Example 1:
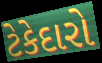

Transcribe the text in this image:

ટેકેદારો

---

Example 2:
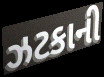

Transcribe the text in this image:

ઝટકાની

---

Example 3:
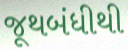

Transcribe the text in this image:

જૂથબંધીથી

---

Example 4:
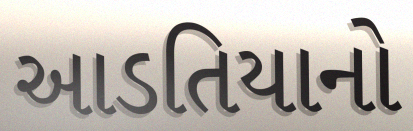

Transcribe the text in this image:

આડતિયાનો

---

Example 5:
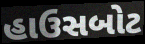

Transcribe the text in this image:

હાઉસબોટ